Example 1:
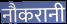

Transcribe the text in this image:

नौकरानी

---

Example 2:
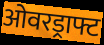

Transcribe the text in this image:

ओवरड्राफ्ट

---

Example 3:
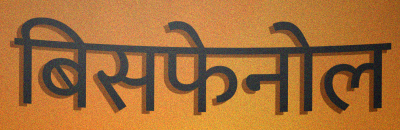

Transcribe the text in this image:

बिसफेनोल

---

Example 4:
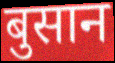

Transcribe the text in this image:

बुसान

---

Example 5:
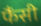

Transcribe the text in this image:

फैंसी